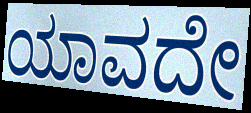
ಯಾವದೇ